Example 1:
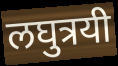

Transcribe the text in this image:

लघुत्रयी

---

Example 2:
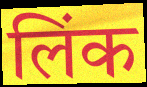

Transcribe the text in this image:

लिंक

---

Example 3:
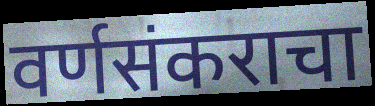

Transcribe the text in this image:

वर्णसंकराचा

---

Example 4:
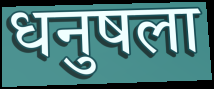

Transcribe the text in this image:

धनुषला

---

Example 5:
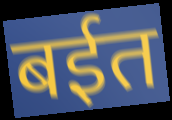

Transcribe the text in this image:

बईत